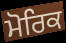
ਮੋਰਿਕ